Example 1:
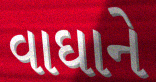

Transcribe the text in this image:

વાઘાને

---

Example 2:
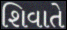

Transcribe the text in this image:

શિવાતે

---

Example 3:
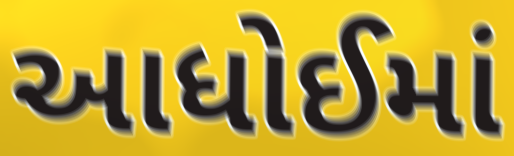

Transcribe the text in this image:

આધોઈમાં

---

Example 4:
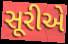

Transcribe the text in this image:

સૂરીએ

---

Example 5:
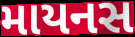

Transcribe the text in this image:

માયનસ